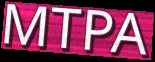
MTPA